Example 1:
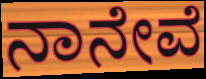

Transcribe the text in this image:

ನಾನೇವೆ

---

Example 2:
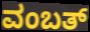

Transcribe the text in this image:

ವಂಬತ್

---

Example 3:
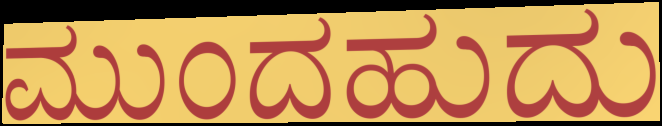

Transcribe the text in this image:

ಮುಂದಹುದು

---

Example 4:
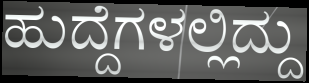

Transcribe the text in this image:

ಹುದ್ದೆಗಳಲ್ಲಿದ್ದು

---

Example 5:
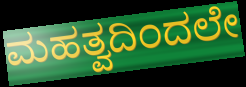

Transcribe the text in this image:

ಮಹತ್ವದಿಂದಲೇ